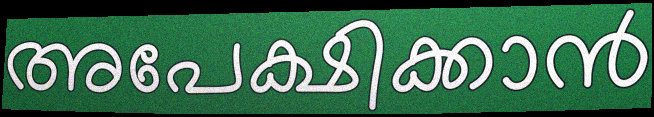
അപേക്ഷിക്കാൻ